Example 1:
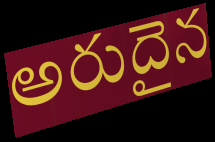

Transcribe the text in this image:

అరుదైన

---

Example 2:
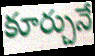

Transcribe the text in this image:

కూర్చునే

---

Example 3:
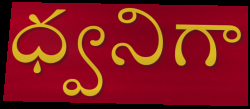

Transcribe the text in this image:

ధ్వనిగా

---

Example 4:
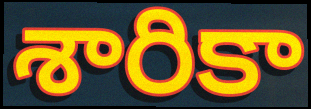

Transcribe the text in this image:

శారికా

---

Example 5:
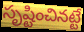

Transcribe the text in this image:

సృష్టించినట్టే